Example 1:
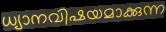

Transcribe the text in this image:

ധ്യാനവിഷയമാക്കുന്ന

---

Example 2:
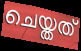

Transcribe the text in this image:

ചെയ്തത്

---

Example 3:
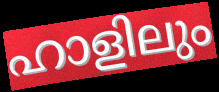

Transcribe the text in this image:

ഹാളിലും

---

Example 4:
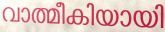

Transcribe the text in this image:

വാത്മീകിയായി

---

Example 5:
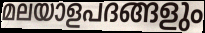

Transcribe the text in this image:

മലയാളപദങ്ങളും